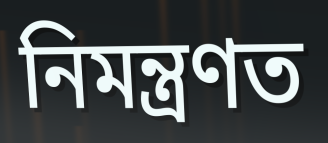
নিমন্ত্ৰণত